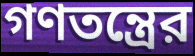
গণতন্ত্রের